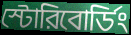
স্টোরিবোর্ডিং